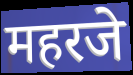
महरजे